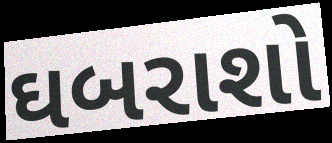
ઘબરાશો